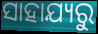
ସାହାଯ୍ୟରୁ